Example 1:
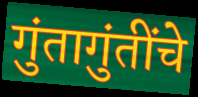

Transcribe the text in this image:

गुंतागुंतींचे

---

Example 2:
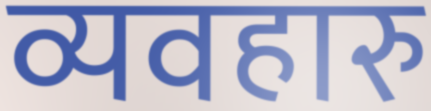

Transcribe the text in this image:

व्यवहारु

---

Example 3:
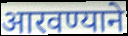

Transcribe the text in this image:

आरवण्याने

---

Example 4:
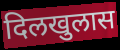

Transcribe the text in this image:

दिलखुलास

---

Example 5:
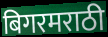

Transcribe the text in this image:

बिगरमराठी